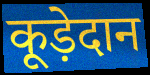
कूड़ेदान